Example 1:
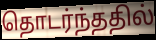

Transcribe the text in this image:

தொடர்ந்ததில்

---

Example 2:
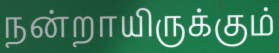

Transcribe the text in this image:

நன்றாயிருக்கும்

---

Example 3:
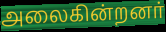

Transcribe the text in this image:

அலைகின்றனர்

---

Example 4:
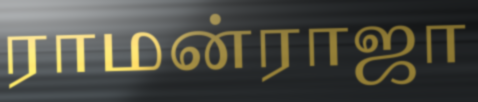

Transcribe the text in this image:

ராமன்ராஜா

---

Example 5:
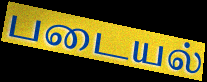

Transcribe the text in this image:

படையல்